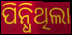
ପିନ୍ଧିଥିଲା